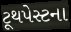
ટૂથપેસ્ટના